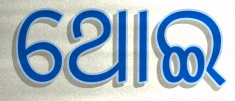
ଥୋଇ